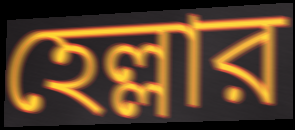
হেল্লার